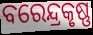
ବରେନ୍ଦ୍ରକୃଷ୍ଣ